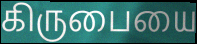
கிருபையை